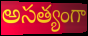
అసత్యంగా